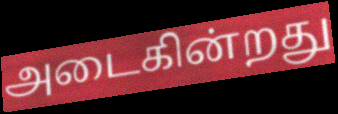
அடைகின்றது